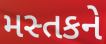
મસ્તકને